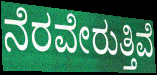
ನೆರವೇರುತ್ತಿವೆ